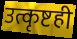
उत्कृष्टही